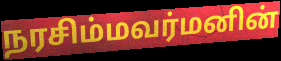
நரசிம்மவர்மனின்